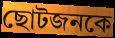
ছোটজনকে